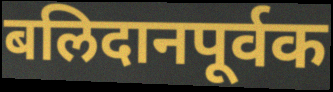
बलिदानपूर्वक